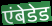
एंबेडेड